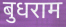
बुधराम